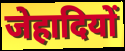
जेहादियों